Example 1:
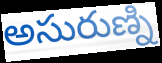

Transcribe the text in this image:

అసురుణ్ని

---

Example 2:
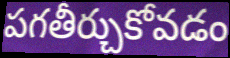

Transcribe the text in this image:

పగతీర్చుకోవడం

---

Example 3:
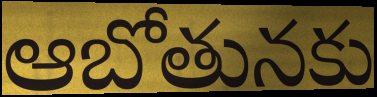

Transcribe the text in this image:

ఆబోతునకు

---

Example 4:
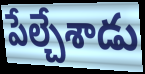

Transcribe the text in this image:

పేల్చేశాడు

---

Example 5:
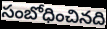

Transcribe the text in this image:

సంబోధించినది